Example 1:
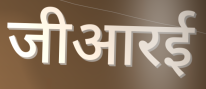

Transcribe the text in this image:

जीआरई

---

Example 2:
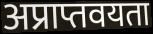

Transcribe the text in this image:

अप्राप्तवयता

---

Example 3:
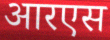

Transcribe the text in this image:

आरएस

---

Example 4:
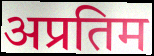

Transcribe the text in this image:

अप्रतिम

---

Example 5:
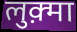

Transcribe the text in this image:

लुक़्मा